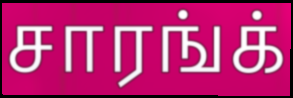
சாரங்க்